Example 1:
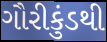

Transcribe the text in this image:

ગૌરીકુંડથી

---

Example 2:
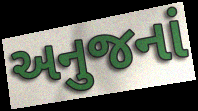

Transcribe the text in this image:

અનુજનાં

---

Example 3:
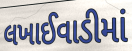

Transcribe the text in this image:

લખાઈવાડીમાં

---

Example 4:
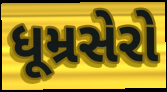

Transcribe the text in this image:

ધૂમ્રસેરો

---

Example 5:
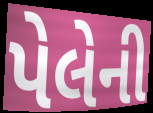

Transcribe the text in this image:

પેલેની